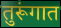
तुरूंगात